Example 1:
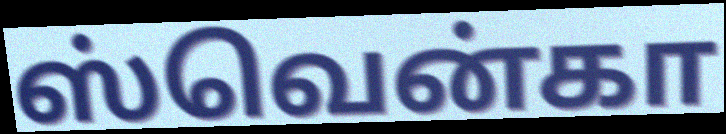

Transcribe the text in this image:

ஸ்வென்கா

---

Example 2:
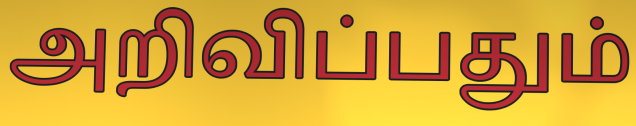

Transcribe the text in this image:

அறிவிப்பதும்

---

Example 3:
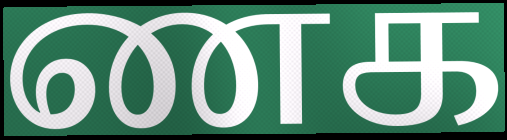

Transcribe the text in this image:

ணக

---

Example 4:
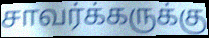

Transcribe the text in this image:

சாவர்க்கருக்கு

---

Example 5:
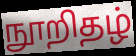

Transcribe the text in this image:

நூறிதழ்